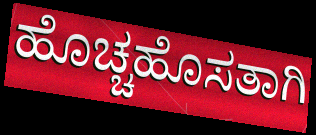
ಹೊಚ್ಚಹೊಸತಾಗಿ